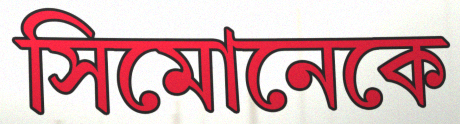
সিমোনেকে